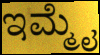
ಇಮ್ಮೈ